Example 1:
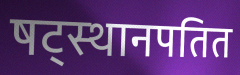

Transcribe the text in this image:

षट्स्थानपतित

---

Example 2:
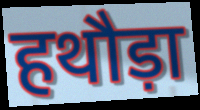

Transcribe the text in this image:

हथौड़ा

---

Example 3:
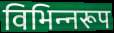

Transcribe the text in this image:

विभिन्नरूप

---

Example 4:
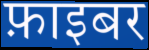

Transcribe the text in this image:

फ़ाइबर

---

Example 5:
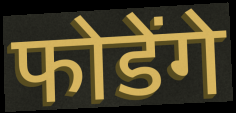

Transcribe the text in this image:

फोडेंगे